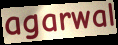
agarwal